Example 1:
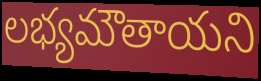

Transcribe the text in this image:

లభ్యమౌతాయని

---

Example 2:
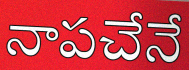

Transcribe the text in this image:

నాపచేనే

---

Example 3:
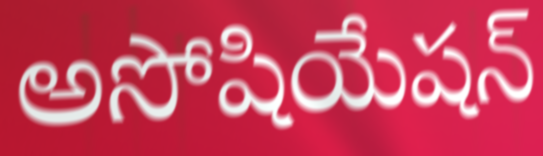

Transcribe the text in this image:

అసోషియేషన్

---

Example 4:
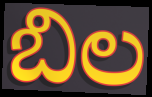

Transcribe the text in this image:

బిల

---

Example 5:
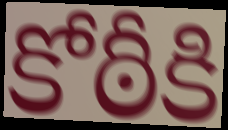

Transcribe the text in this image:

కోఠీకి